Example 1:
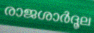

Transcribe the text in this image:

രാജശാർദൂല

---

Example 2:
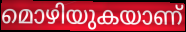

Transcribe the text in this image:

മൊഴിയുകയാണ്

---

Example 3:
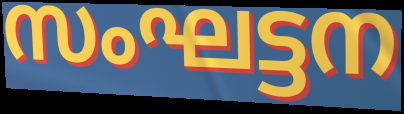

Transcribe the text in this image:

സംഘട്ടന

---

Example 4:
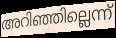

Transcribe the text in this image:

അറിഞ്ഞില്ലെന്ന്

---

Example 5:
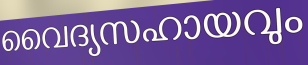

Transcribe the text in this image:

വൈദ്യസഹായവും